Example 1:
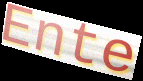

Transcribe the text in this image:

Ente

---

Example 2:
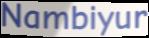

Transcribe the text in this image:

Nambiyur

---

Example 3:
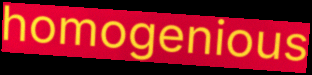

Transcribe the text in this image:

homogenious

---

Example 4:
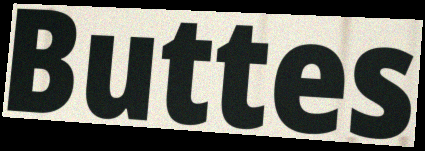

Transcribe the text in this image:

Buttes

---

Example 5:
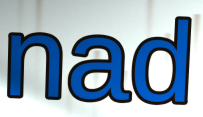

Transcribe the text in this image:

nad